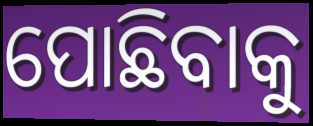
ପୋଛିବାକୁ